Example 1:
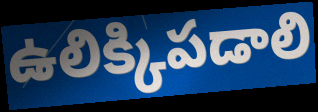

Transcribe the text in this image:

ఉలిక్కిపడాలి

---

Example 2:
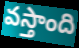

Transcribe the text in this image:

వస్తాంది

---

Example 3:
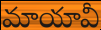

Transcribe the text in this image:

మాయావీ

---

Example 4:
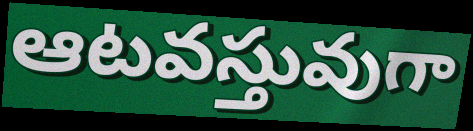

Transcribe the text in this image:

ఆటవస్తువుగా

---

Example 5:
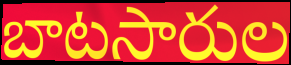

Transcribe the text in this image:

బాటసారుల